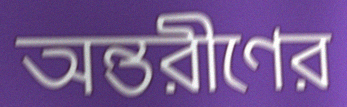
অন্তরীণের